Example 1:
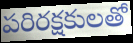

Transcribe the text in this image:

పరిరక్షకులతో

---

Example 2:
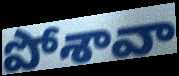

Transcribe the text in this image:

పోశావా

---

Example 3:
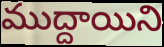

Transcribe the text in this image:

ముద్దాయిని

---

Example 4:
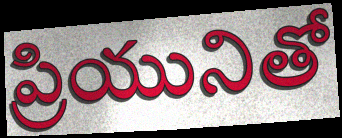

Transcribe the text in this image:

ప్రియునితో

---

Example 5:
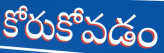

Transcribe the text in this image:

కోరుకోవడం